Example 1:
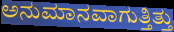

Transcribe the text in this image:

ಅನುಮಾನವಾಗುತ್ತಿತ್ತು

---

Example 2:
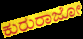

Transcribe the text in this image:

ಕುರುರಾಜೋ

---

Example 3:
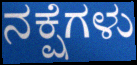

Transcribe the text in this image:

ನಕ್ಷೆಗಳು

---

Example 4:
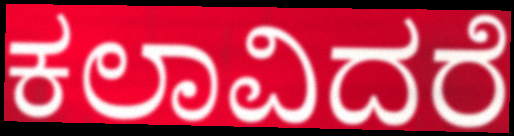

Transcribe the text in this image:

ಕಲಾವಿದರೆ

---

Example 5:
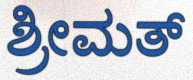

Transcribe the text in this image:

ಶ್ರೀಮತ್